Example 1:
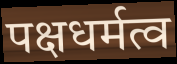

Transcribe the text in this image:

पक्षधर्मत्व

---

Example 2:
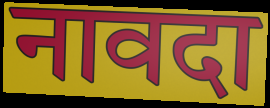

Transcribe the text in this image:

नावदा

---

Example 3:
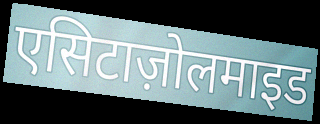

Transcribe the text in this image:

एसिटाज़ोलमाइड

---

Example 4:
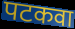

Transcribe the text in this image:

पटकवा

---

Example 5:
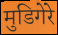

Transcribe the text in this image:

मुडिगेरे